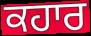
ਕਹਾਰ